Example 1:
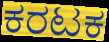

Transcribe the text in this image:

ಕರಟಕ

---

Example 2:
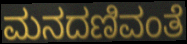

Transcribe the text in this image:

ಮನದಣಿವಂತೆ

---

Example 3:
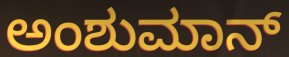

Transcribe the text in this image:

ಅಂಶುಮಾನ್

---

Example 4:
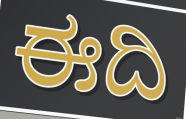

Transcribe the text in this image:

ಈದಿ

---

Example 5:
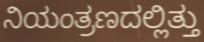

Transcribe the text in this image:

ನಿಯಂತ್ರಣದಲ್ಲಿತ್ತು